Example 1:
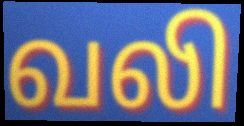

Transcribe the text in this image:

வலி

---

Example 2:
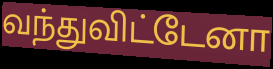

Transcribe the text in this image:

வந்துவிட்டேனா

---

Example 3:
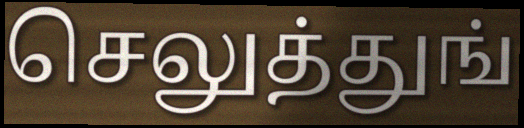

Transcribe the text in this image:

செலுத்துங்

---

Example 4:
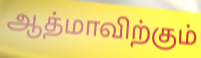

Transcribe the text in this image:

ஆத்மாவிற்கும்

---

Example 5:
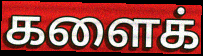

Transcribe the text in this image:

களைக்